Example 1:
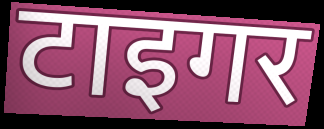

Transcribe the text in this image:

टाइगर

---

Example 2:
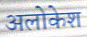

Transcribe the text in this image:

अलोकेश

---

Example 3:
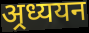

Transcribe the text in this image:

अ्रध्ययन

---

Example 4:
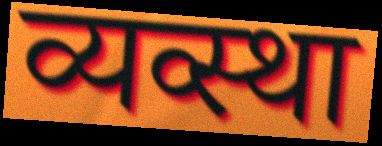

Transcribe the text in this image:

व्यव्स्था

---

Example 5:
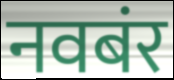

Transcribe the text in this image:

नवबंर